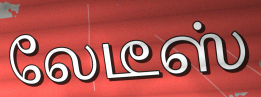
லேடீஸ்